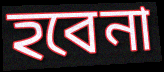
হবেনা